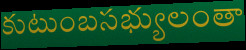
కుటుంబసభ్యులంతా